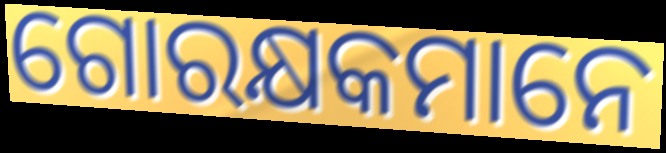
ଗୋରକ୍ଷକମାନେ